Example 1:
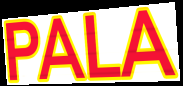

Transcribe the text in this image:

PALA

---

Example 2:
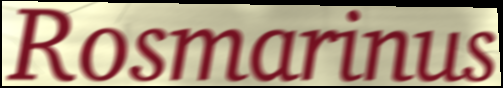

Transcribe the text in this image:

Rosmarinus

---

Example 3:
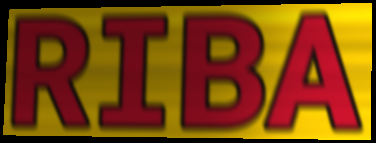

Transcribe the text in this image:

RIBA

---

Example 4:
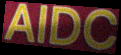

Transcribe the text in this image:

AIDC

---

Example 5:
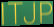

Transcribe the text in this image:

ITJP